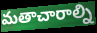
మతాచారాల్ని